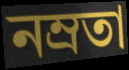
নম্ৰতা